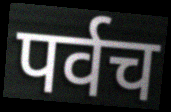
पर्वच